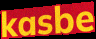
kasbe